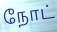
நோட்